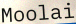
Moolai